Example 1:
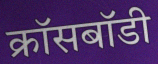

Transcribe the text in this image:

क्रॉसबॉडी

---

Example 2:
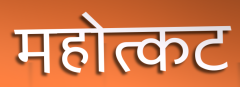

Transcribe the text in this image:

महोत्कट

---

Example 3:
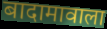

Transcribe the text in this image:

बादामावाला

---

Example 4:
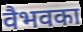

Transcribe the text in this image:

वैभवका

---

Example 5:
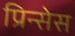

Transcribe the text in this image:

प्रिन्सेस